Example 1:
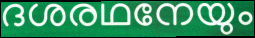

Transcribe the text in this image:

ദശരഥനേയും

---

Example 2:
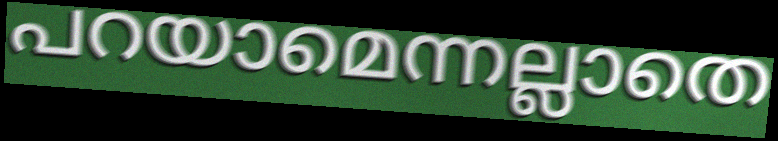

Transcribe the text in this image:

പറയാമെന്നല്ലാതെ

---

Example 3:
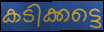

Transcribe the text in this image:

കടിക്കട്ടെ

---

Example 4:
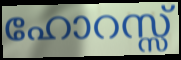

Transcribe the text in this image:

ഹോറസ്സ്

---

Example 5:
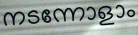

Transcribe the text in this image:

നടന്നോളാം